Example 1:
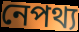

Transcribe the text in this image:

নেপথ্য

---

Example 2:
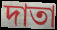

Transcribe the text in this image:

দাতা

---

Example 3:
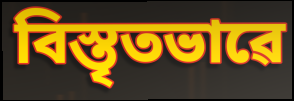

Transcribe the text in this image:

বিস্তৃতভাৱে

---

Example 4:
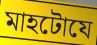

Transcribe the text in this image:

মাহটোযে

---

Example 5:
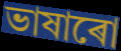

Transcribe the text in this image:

ভাষাৰো